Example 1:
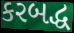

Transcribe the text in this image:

કરબદ્ધ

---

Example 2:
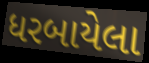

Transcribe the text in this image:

ધરબાયેલા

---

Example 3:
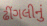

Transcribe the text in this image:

ઢીંગલીનું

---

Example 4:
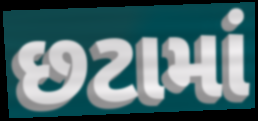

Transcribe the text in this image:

છટામાં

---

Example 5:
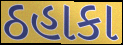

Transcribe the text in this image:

ઠહાકા